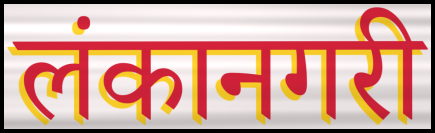
लंकानगरी